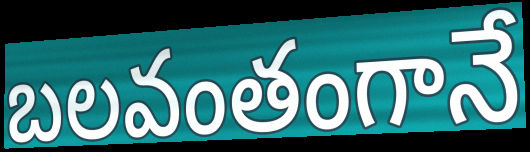
బలవంతంగానే